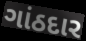
ગાંઠદાર